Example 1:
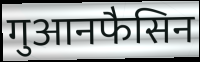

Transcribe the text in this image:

गुआनफैसिन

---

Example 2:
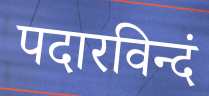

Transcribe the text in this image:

पदारविन्दं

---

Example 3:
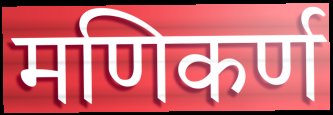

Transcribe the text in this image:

मणिकर्ण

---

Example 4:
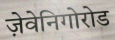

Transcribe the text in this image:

ज़ेवेनिगोरोड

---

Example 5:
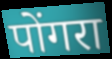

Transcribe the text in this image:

पोंगरा